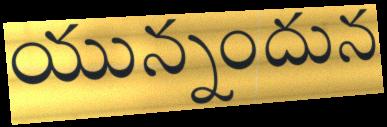
యున్నందున